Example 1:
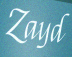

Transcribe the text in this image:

Zayd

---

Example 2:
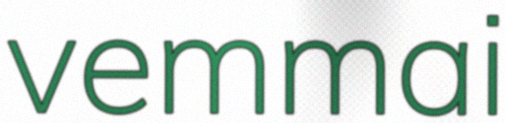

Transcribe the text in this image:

vemmai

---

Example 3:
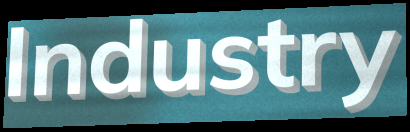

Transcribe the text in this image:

Industry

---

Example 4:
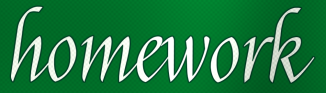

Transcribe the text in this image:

homework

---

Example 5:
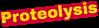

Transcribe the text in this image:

Proteolysis